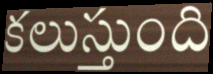
కలుస్తుంది